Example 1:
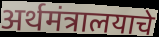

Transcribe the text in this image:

अर्थमंत्रालयाचे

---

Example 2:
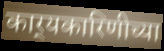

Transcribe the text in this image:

कार्यकारिणीच्या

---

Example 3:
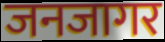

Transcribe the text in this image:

जनजागर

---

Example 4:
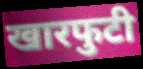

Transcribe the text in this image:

खारफुटी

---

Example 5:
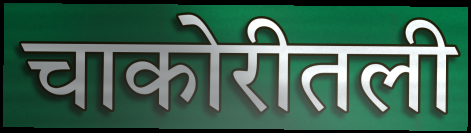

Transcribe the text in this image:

चाकोरीतली